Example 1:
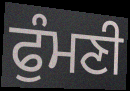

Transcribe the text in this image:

ਫੁੰਮਣੀ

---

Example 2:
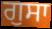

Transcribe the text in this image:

ਗੁਸਾ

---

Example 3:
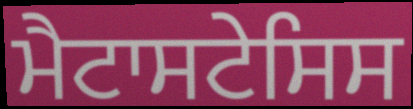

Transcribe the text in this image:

ਮੈਟਾਸਟੇਸਿਸ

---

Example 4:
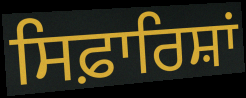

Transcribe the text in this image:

ਸਿਫ਼ਾਰਿਸ਼ਾਂ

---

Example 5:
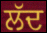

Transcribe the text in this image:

ਲੱਦ